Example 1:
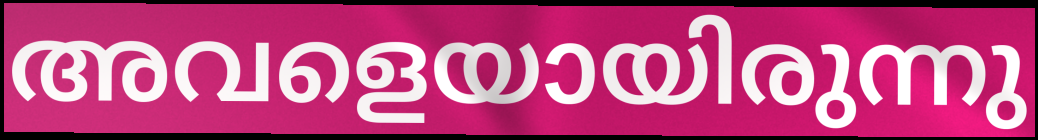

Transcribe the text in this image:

അവളെയായിരുന്നു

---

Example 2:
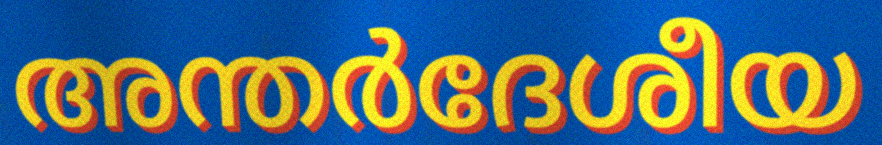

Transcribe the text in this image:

അന്തർദേശീയ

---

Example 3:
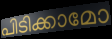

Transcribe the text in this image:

പിടിക്കാമോ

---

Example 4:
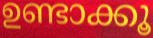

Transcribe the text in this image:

ഉണ്ടാക്കൂ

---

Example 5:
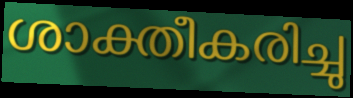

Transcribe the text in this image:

ശാക്തീകരിച്ചു